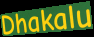
Dhakalu